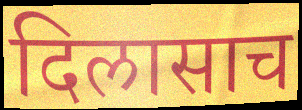
दिलासाच